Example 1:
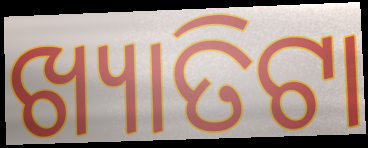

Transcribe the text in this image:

ଖ୍ୟାତିଟା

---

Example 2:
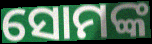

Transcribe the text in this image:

ସୋମଙ୍କ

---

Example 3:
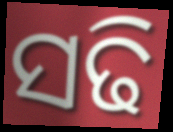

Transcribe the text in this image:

ସଢି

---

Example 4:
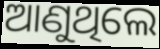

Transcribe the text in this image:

ଆଣୁଥିଲେ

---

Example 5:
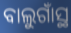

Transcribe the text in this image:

ବାଲୁଗାଁସ୍ଥ